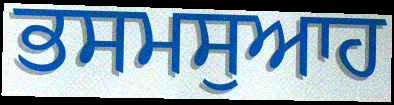
ਭਸਮਸੁਆਹ